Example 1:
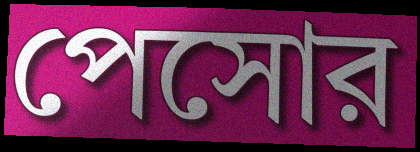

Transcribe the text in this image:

পেসোর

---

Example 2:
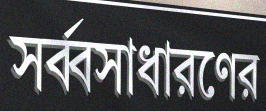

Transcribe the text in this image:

সর্ব্বসাধারণের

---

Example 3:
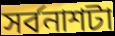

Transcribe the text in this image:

সর্বনাশটা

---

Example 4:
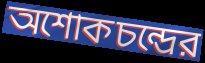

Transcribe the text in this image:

অশোকচন্দ্রের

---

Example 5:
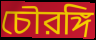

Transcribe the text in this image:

চৌরঙ্গি